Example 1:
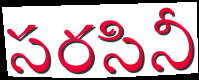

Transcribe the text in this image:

సరసినీ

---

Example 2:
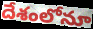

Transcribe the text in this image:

దేశంలోనూ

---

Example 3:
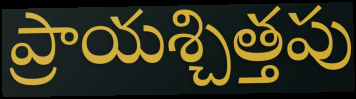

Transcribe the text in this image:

ప్రాయశ్చిత్తపు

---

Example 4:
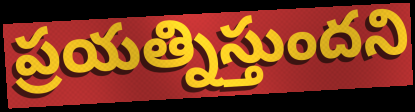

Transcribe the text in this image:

ప్రయత్నిస్తుందని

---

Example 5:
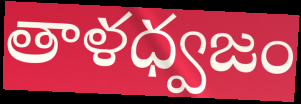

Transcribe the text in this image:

తాళధ్వజం